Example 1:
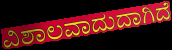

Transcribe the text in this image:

ವಿಶಾಲವಾದುದಾಗಿದೆ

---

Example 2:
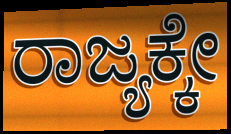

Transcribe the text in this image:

ರಾಜ್ಯಕ್ಕೇ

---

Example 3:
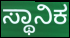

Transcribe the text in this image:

ಸ್ಥಾನಿಕ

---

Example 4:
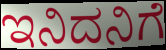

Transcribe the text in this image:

ಇನಿದನಿಗೆ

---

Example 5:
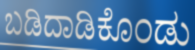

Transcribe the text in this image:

ಬಡಿದಾಡಿಕೊಂಡು